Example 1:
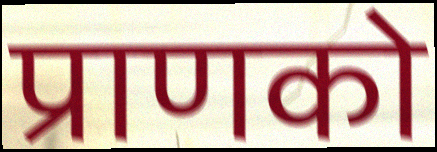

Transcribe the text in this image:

प्राणको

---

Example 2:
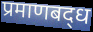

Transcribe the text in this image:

प्रमाणबद्ध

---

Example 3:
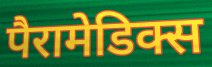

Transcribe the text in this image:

पैरामेडिक्स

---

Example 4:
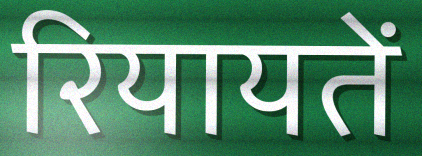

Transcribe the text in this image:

रियायतें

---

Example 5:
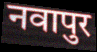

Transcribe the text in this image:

नवापुर